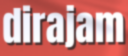
dirajam